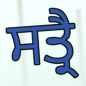
ਸਤ੍ਰੈ